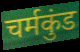
चर्मकुंड